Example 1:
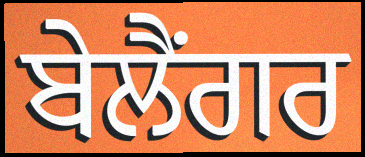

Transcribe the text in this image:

ਬੇਲੈਂਗਰ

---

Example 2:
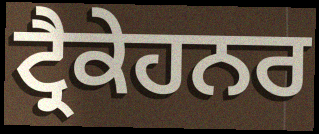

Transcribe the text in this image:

ਟ੍ਰੈਕੇਹਨਰ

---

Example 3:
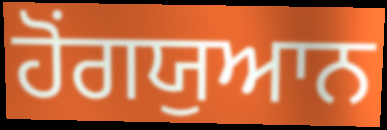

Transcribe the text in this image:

ਹੋਂਗਯੁਆਨ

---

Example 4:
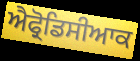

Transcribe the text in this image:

ਐਫ੍ਰੋਡਿਸੀਆਕ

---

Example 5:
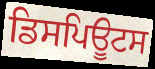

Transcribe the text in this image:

ਡਿਸਪਿਊਟਸ